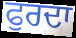
ਫੁਰਦਾ